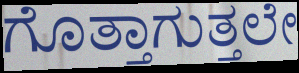
ಗೊತ್ತಾಗುತ್ತಲೇ